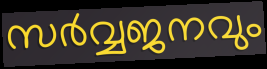
സർവ്വജനവും